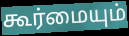
கூர்மையும்